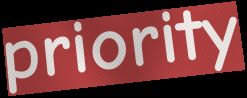
priority